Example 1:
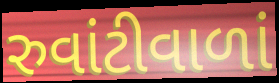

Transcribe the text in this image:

રુવાંટીવાળાં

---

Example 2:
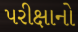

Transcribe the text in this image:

પરીક્ષાનો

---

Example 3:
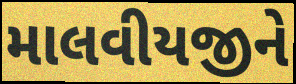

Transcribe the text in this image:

માલવીયજીને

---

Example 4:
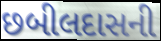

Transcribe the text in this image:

છબીલદાસની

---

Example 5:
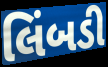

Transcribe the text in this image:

લિંબડી